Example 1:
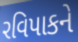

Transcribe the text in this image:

રવિપાકને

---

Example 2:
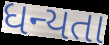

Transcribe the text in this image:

ધન્યતા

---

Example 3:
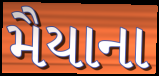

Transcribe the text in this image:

મૈયાના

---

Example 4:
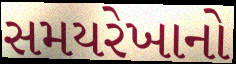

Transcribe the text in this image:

સમયરેખાનો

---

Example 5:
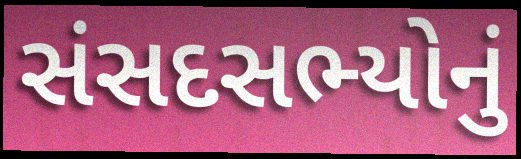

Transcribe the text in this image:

સંસદસભ્યોનું